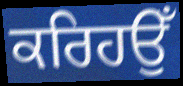
ਕਰਿਹਉਁ